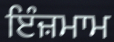
ਇੰਜ਼ਮਾਮ